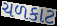
ચળકાટ